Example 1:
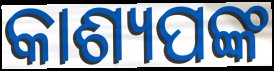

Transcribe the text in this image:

କାଶ୍ୟପଙ୍କ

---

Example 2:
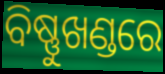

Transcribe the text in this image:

ବିଷ୍ଣୁଖଣ୍ଡରେ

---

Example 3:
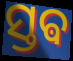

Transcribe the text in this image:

ସ୍ତଵ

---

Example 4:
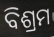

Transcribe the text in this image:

ବିଶ୍ରମ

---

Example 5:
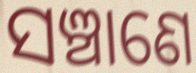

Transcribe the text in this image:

ସଞ୍ଚାଣେ